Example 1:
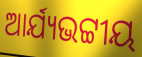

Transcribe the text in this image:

ଆର୍ଯ୍ୟଭଟ୍ଟୀୟ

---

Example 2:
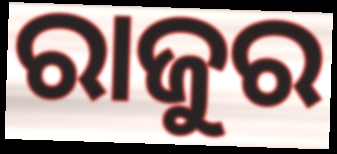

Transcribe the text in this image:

ରାଜୁର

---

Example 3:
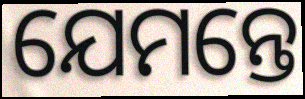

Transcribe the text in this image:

ଯେମନ୍ତେ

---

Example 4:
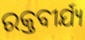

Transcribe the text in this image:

ରକ୍ତବୀର୍ଯ୍ୟ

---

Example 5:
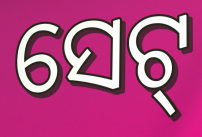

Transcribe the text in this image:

ସେଟ୍